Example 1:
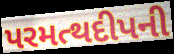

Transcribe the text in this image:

પરમત્થદીપની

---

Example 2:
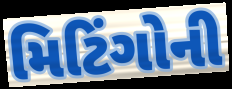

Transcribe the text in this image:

મિટિંગોની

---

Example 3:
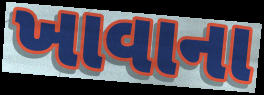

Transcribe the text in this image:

ખાવાના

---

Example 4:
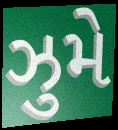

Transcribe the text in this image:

ઝુમે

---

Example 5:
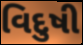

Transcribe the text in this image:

વિદુષી